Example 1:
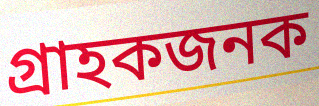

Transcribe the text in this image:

গ্ৰাহকজনক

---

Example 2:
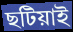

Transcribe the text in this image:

ছটিয়াই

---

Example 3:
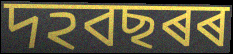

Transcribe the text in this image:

দহবছৰৰ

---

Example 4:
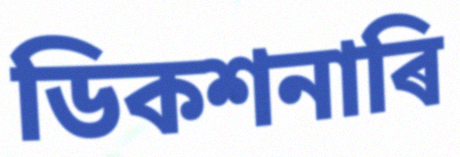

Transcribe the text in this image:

ডিকশনাৰি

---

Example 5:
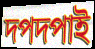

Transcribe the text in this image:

দপদপাই